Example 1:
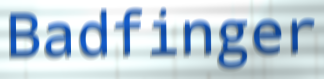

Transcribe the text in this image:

Badfinger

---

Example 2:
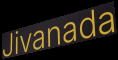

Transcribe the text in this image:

Jivanada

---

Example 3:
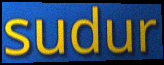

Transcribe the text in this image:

sudur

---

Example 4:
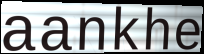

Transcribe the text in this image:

aankhe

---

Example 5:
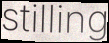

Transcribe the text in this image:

stilling